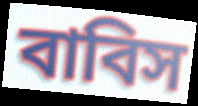
বাবিস